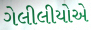
ગેલીલીયોએ